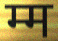
म्म